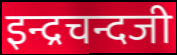
इन्द्रचन्दजी